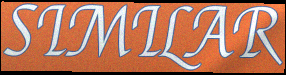
SIMILAR